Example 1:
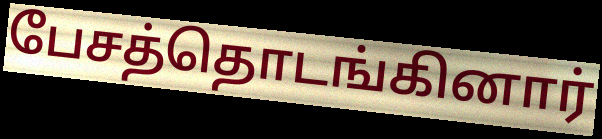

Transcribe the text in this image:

பேசத்தொடங்கினார்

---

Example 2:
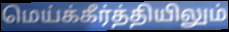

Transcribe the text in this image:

மெய்க்கீர்த்தியிலும்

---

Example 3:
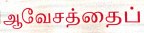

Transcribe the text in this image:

ஆவேசத்தைப்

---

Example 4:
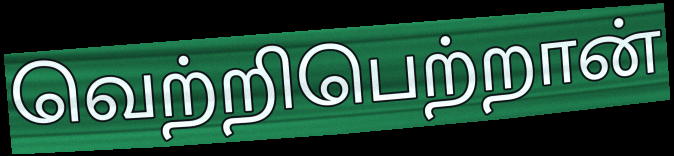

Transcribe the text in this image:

வெற்றிபெற்றான்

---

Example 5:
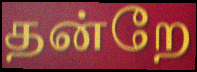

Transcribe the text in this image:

தன்றே